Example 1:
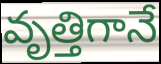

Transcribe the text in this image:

వృత్తిగానే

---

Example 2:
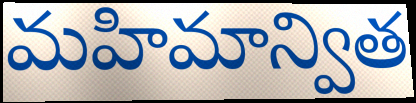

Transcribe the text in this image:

మహిమాన్విత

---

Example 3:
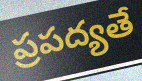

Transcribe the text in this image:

ప్రపద్యతే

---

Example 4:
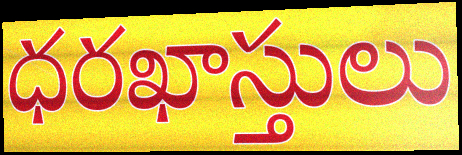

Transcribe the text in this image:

ధరఖాస్తులు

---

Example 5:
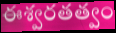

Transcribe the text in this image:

ఈశ్వరతత్వం